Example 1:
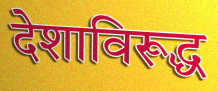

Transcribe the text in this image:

देशाविरूद्ध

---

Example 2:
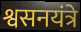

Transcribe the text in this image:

श्वसनयंत्रे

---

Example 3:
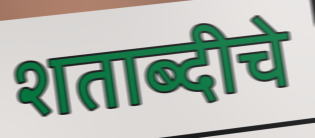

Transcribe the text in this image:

शताब्दीचे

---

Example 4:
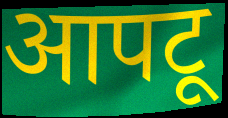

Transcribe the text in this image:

आपटू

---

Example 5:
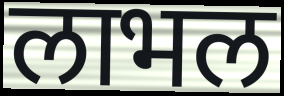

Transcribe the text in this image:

लाभल